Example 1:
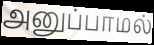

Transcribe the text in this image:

அனுப்பாமல்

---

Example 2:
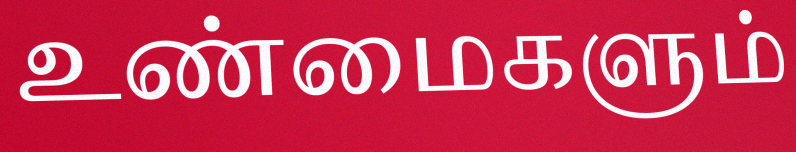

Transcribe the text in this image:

உண்மைகளும்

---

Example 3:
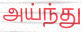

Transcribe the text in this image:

அய்ந்து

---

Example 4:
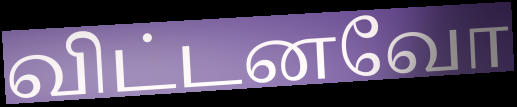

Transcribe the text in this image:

விட்டனவோ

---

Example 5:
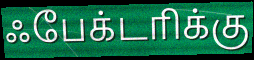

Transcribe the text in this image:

ஃபேக்டரிக்கு